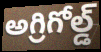
అగ్రిగోల్డ్